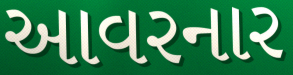
આવરનાર